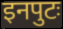
इनपुटः